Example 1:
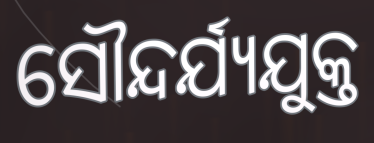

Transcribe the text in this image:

ସୌନ୍ଦର୍ଯ୍ୟଯୁକ୍ତ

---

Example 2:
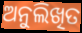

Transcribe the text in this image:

ଅନୁଲିଖିତ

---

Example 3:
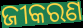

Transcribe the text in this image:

ଜୀକରଣ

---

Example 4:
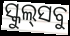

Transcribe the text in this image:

ସ୍କୁଲ୍‍ସବୁ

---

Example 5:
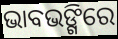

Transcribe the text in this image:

ଭାବଭଙ୍ଗିରେ